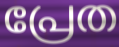
പ്രേത